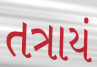
તત્રાયં